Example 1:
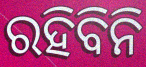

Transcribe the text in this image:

ରହିବିନି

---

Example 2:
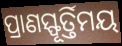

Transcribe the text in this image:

ପ୍ରାଣସ୍ଫୂର୍ତ୍ତିମୟ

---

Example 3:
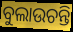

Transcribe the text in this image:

ବୁଲାଉଚନ୍ତି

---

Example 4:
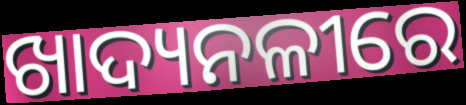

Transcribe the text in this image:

ଖାଦ୍ୟନଳୀରେ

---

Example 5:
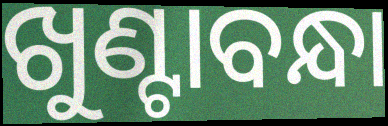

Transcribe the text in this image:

ଖୁଣ୍ଟାବନ୍ଧା